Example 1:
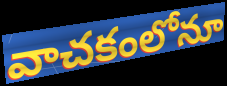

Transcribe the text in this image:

వాచకంలోనూ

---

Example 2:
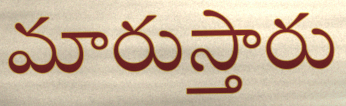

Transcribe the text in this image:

మారుస్తారు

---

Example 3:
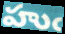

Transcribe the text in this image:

హుఁ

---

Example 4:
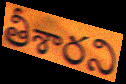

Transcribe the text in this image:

తీశారని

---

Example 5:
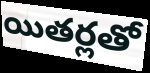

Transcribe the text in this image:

యితర్లతో